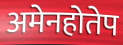
अमेनहोतेप